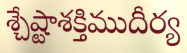
శ్చేష్టాశక్తిముదీర్య